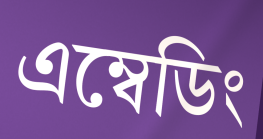
এম্বেডিং